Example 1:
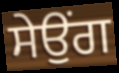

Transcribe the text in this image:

ਸੇਉਂਗ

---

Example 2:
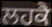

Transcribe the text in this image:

ਲਹਕੈ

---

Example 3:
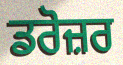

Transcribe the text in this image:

ਡਰੋਜ਼ਰ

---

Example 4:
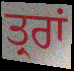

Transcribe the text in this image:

ਤ੍ਰਰਾਂ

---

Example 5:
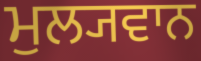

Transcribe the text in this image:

ਮੁਲ੍ਯਵਾਨ